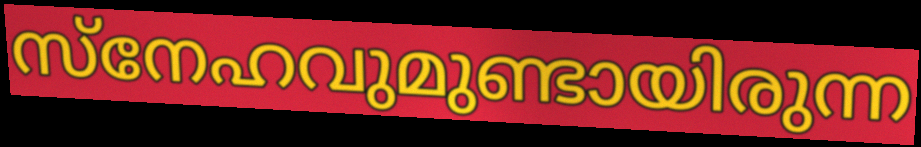
സ്നേഹവുമുണ്ടായിരുന്ന